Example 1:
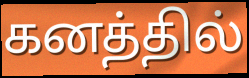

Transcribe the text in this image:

கனத்தில்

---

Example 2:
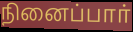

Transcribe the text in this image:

நினைப்பார்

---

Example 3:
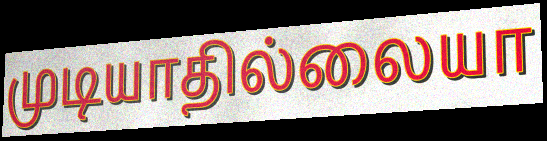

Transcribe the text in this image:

முடியாதில்லையா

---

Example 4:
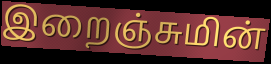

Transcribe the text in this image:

இறைஞ்சுமின்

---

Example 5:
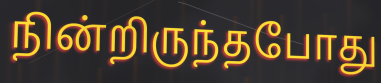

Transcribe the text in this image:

நின்றிருந்தபோது